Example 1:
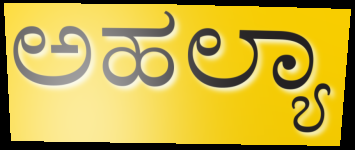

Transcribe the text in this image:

ಅಹಲ್ಯಾ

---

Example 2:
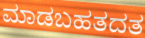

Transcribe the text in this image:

ಮಾಡಬಹತದತ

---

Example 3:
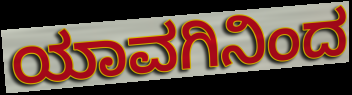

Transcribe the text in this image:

ಯಾವಗಿನಿಂದ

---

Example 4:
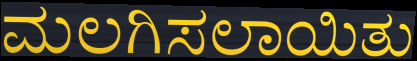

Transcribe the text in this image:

ಮಲಗಿಸಲಾಯಿತು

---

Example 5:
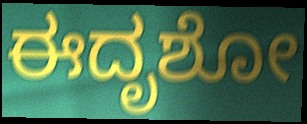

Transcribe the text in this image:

ಈದೃಶೋ